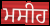
ਮਸੀਹ